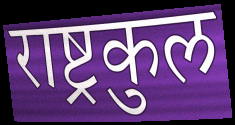
राष्ट्रकुल